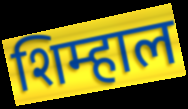
शिम्हाल